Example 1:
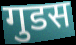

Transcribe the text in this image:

गुडस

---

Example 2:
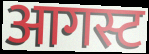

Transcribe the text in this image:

आगस्ट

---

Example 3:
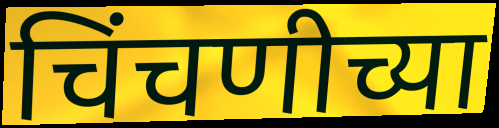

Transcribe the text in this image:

चिंचणीच्या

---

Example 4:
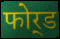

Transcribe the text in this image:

फोर्ड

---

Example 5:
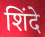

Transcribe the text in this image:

शिंदे